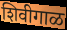
शिवीगाळ